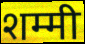
शम्मी